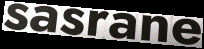
sasrane